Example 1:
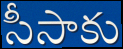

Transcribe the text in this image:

సీసాకు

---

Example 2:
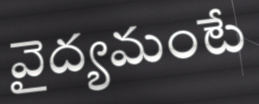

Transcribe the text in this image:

వైద్యమంటే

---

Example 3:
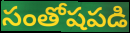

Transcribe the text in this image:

సంతోషపడి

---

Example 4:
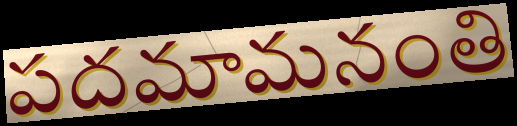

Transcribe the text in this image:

పదమామనంతి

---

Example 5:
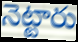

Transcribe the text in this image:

నెట్టారు